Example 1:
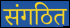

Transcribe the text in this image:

संगठित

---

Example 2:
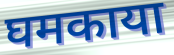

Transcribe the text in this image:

घमकाया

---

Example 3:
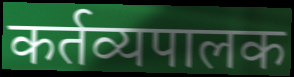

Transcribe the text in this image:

कर्तव्यपालक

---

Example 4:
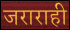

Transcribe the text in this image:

जराराही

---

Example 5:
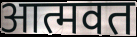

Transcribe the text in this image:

आत्मवत